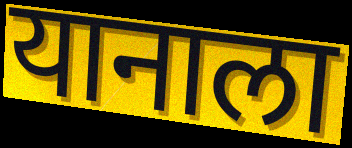
यानाला